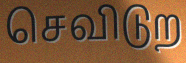
செவிடுற